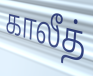
காலீத்